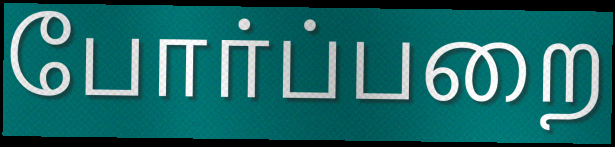
போர்ப்பறை